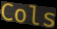
Cols